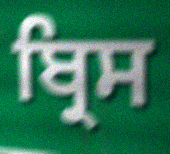
ਬ੍ਰਿਸ